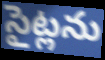
సైట్లను